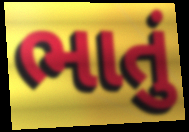
ભાતું